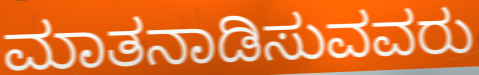
ಮಾತನಾಡಿಸುವವರು